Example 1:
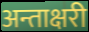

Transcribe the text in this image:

अन्ताक्षरी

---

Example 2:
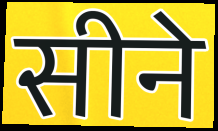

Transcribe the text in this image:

सीने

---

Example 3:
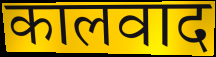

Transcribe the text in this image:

कालवाद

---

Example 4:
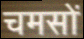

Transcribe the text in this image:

चमसों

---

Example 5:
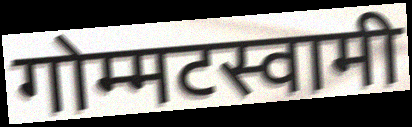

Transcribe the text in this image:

गोम्मटस्वामी